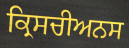
ਕ੍ਰਿਸਚੀਅਨਸ